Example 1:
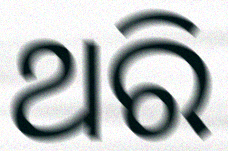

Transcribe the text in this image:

ଥରି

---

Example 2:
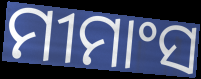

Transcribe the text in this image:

ମୀମାଂସ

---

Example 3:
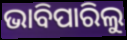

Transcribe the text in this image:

ଭାବିପାରିଲୁ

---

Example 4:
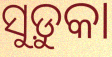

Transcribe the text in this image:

ସୁଡ଼ୁକା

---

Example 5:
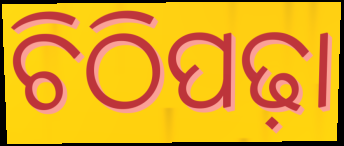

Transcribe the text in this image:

ଚିଠିପଢ଼ା